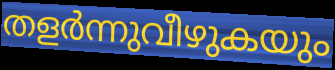
തളർന്നുവീഴുകയും